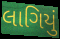
લાગિયું